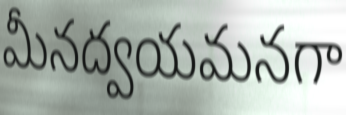
మీనద్వయమనగా